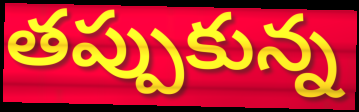
తప్పుకున్న